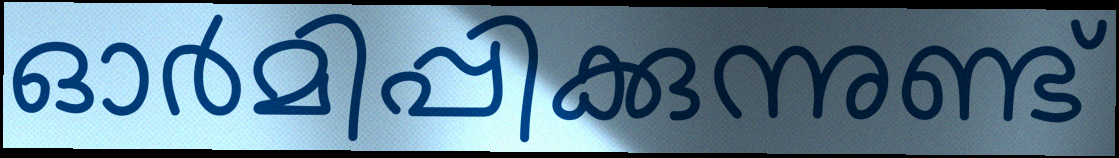
ഓർമിപ്പിക്കുന്നുണ്ട്